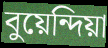
বুয়েন্দিয়া